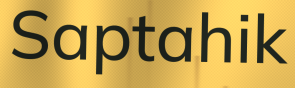
Saptahik